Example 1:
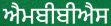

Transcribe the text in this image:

ਐਮਬੀਬੀਐਸ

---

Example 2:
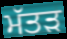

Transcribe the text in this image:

ਮੱਤੜ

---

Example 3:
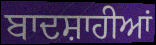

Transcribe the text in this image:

ਬਾਦਸ਼ਾਹੀਆਂ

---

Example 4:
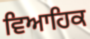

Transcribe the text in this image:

ਵਿਆਹਿਕ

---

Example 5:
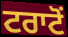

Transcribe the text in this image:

ਟਰਾਟੋਂ